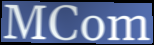
MCom